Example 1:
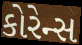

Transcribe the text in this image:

કોરેન્સ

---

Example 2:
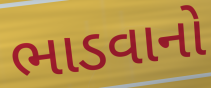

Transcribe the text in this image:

ભાડવાનો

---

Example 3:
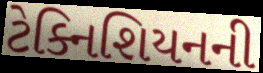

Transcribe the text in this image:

ટેક્નિશિયનની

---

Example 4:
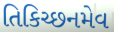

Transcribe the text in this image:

તિકિચ્છનમેવ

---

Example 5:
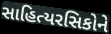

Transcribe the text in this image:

સાહિત્યરસિકોને